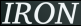
IRON